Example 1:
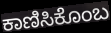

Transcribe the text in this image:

ಕಾಣಿಸಿಕೊಂಬ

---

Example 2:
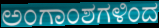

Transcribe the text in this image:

ಅಂಗಾಂಶಗಳಿಂದ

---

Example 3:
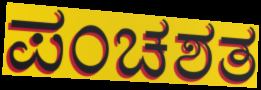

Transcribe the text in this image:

ಪಂಚಶತ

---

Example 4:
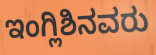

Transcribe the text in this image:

ಇಂಗ್ಲಿಶಿನವರು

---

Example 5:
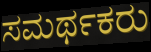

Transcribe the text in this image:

ಸಮರ್ಥಕರು